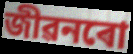
জীৱনৰো